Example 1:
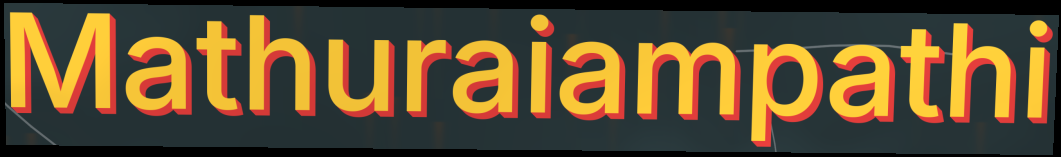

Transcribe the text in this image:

Mathuraiampathi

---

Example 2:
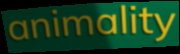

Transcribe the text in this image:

animality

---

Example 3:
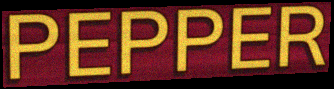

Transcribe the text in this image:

PEPPER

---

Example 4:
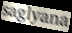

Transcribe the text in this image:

saglyana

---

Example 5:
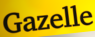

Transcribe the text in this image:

Gazelle